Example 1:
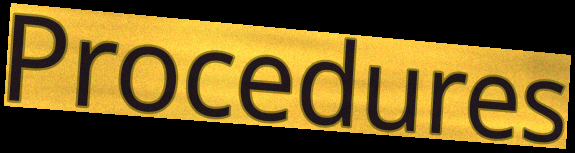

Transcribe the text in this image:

Procedures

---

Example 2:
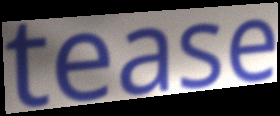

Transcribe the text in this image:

tease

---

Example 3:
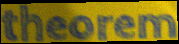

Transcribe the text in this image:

theorem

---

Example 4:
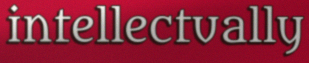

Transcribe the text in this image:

intellectually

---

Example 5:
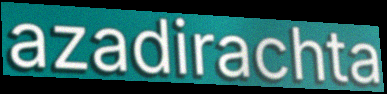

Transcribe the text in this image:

azadirachta